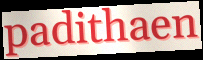
padithaen